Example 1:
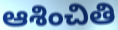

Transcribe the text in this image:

ఆశించితి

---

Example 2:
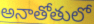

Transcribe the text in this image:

అనాతోతులో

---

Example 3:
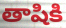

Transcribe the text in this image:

తాషికి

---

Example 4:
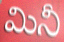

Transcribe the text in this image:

మినీ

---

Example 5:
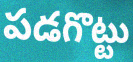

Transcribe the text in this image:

పడగొట్టు